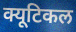
क्यूटिकल